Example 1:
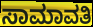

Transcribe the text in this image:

ಸಾಮಾವತಿ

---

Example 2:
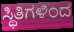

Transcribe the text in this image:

ಸ್ಥಿತಿಗಳಿಂದ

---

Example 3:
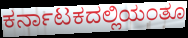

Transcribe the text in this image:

ಕರ್ನಾಟಕದಲ್ಲಿಯಂತೂ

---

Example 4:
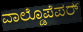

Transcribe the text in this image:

ವಾಲ್ಡೊಪೆಪರ್‍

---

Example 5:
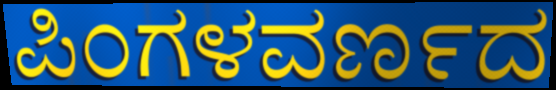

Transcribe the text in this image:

ಪಿಂಗಳವರ್ಣದ